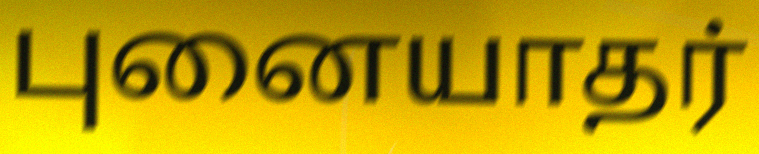
புனையாதர்